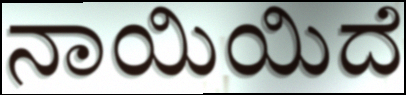
ನಾಯಿಯಿದೆ